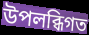
উপলব্ধিগত